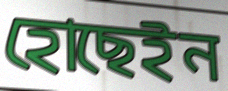
হোছেইন